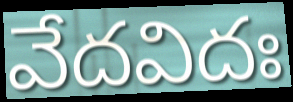
వేదవిదః